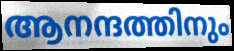
ആനന്ദത്തിനും